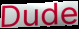
Dude